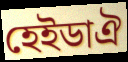
হেইডাঐ